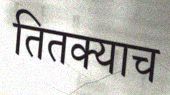
तितक्याच